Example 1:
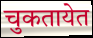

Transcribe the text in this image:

चुकतायेत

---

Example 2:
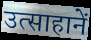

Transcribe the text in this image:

उत्साहानें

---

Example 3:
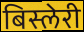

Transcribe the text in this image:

बिस्लेरी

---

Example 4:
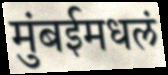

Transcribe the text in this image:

मुंबईमधलं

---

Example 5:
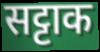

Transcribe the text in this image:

सट्टाक